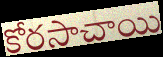
కోరసాచాయి